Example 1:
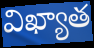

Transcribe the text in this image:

విఖ్యాత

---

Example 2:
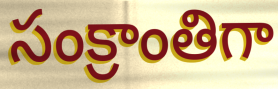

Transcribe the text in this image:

సంక్రాంతిగా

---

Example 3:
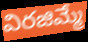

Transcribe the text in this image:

విరజిమ్మే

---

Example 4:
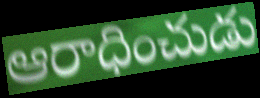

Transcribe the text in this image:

ఆరాధించుడు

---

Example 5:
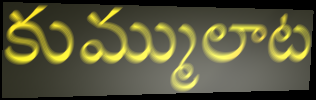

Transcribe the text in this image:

కుమ్ములాట